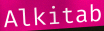
Alkitab